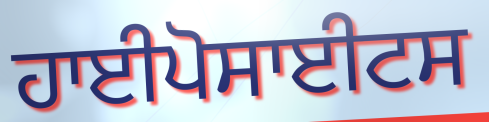
ਹਾਈਪੋਸਾਈਟਸ